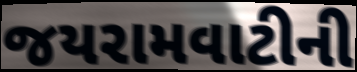
જયરામવાટીની